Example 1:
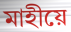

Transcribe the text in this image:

মাহীয়ে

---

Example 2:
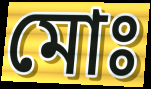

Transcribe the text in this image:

মোঃ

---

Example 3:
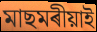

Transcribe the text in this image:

মাছমৰীয়াই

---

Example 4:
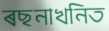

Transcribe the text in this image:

ৰছনাখনিত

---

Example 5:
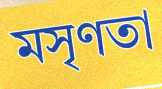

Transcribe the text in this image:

মসৃণতা